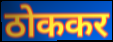
ठोककर